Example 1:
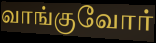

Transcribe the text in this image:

வாங்குவோர்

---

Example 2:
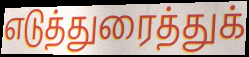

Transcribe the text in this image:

எடுத்துரைத்துக்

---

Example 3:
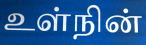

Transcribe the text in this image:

உள்நின்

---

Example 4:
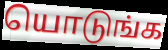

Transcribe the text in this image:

யொடுங்க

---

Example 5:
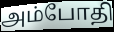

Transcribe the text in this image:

அம்போதி